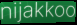
nijakkoo